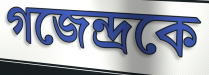
গজেন্দ্রকে